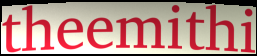
theemithi